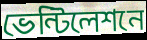
ভেন্টিলেশনে